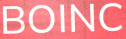
BOINC